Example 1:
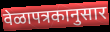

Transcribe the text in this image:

वेळापत्रकानुसार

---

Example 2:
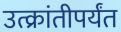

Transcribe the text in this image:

उत्क्रांतीपर्यंत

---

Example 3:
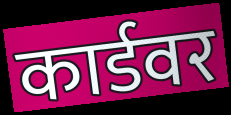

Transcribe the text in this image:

कार्डवर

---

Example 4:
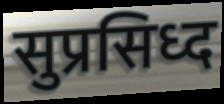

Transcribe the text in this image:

सुप्रसिध्द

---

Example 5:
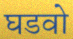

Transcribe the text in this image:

घडवो